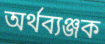
অৰ্থব্যঞ্জক